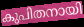
കുപിതനായി